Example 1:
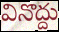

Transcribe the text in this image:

వినొద్దు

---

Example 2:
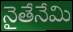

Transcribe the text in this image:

నైతేనేమి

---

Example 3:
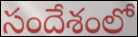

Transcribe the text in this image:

సందేశంలో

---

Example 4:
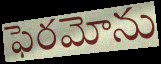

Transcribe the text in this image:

ఫెరమోను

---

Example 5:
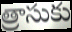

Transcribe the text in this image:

త్రాసుకు